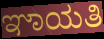
ಞಾಯತಿ